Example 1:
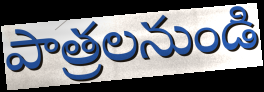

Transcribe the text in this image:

పాత్రలనుండి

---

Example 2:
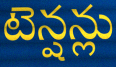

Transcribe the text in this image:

టెన్షన్లు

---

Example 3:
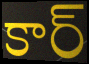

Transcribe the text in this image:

కార్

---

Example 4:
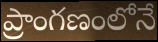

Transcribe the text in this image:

ప్రాంగణంలోనే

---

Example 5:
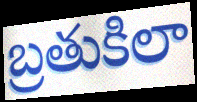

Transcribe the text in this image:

బ్రతుకిలా